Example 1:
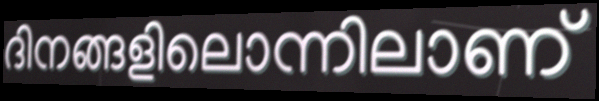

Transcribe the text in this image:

ദിനങ്ങളിലൊന്നിലാണ്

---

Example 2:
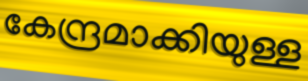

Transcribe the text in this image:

കേന്ദ്രമാക്കിയുള്ള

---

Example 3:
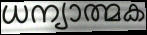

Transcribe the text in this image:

ധന്യാത്മക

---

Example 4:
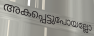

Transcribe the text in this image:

അകപ്പെട്ടുപോയല്ലോ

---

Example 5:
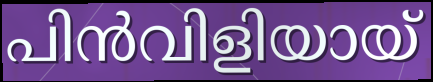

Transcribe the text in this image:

പിൻവിളിയായ്